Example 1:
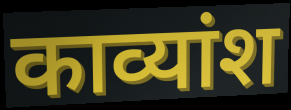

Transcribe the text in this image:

काव्यांश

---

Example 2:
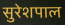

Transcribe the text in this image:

सुरेशपाल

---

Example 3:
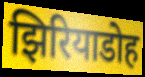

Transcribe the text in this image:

झिरियाडोह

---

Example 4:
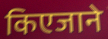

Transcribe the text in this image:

किएजाने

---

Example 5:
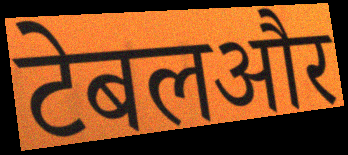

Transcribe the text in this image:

टेबलऔर